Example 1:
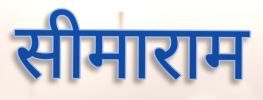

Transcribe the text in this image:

सीमाराम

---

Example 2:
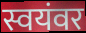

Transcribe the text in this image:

स्वयंवर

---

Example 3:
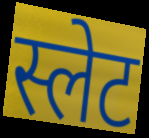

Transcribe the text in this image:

स्लेट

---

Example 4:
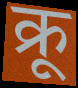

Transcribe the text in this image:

क्रू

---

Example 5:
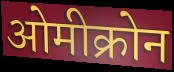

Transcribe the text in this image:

ओमीक्रोन